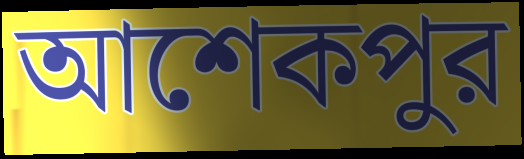
আশেকপুর